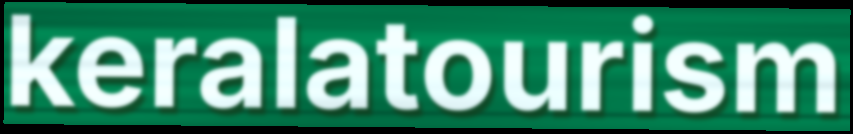
keralatourism